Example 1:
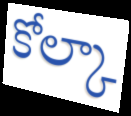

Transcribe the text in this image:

కోల్కా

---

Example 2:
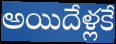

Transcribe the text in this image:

అయిదేళ్లకే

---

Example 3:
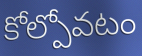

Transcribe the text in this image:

కోల్పోవటం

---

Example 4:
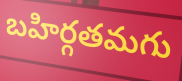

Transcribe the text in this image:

బహిర్గతమగు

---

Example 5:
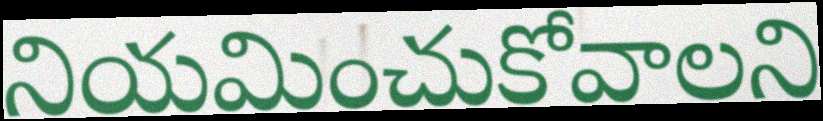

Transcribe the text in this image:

నియమించుకోవాలని